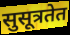
सुसूत्रतेत